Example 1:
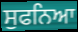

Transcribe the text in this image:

ਸੁਫਨਿਆ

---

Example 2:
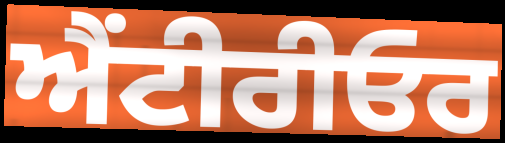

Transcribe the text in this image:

ਐਂਟੀਰੀਓਰ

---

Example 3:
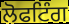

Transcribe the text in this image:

ਲੋਫਟਿੰਗ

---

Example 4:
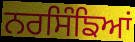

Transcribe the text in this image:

ਨਰਸਿੰਙਿਆਂ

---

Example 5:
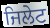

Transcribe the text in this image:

ਜਿਲੇਟ